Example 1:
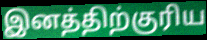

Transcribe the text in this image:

இனத்திற்குரிய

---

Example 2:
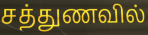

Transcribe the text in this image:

சத்துணவில்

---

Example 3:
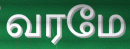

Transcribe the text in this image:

வரமே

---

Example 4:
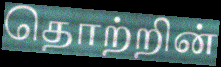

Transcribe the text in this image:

தொற்றின்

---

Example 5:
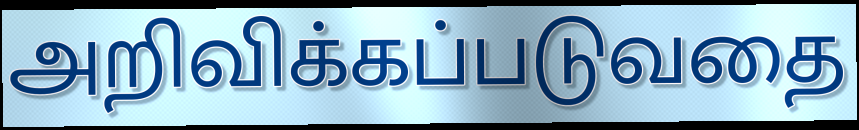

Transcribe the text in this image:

அறிவிக்கப்படுவதை